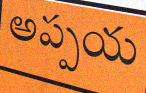
అప్పయ